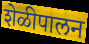
शेळीपालन